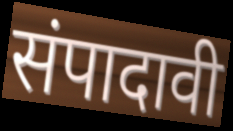
संपादावी